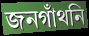
জনগাঁথনি